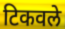
टिकवले